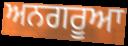
ਅਨਗਰੂਆ